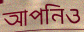
আপনিও